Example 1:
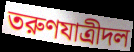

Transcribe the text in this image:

তরুণযাত্রীদল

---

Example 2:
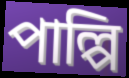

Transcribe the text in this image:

পাল্পি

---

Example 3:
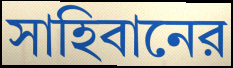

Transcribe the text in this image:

সাহিবানের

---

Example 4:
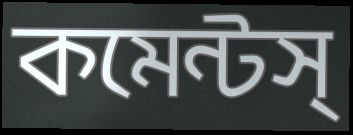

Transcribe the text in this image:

কমেন্টস্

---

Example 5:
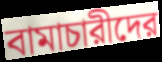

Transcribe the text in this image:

বামাচারীদের